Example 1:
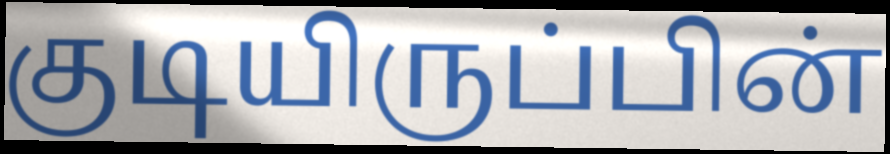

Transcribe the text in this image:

குடியிருப்பின்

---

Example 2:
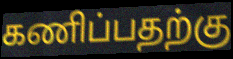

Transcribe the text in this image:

கணிப்பதற்கு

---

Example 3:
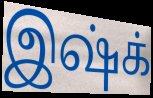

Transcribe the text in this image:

இஷ்க்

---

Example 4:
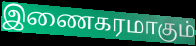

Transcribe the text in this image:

இணைகரமாகும்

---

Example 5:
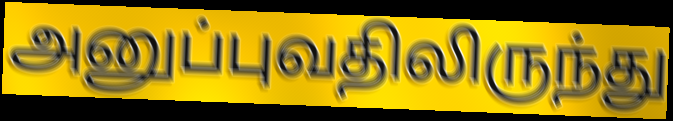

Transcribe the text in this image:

அனுப்புவதிலிருந்து